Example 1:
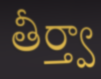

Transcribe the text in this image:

తీర్త్వా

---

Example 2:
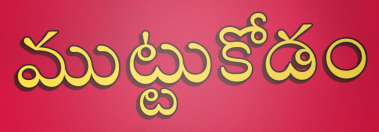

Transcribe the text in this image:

ముట్టుకోడం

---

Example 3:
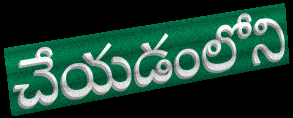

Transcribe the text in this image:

చేయడంలోని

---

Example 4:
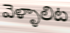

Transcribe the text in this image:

వెళ్ళాలిట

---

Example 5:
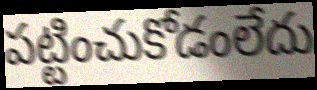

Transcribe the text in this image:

పట్టించుకోడంలేదు